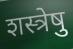
शस्त्रेषु